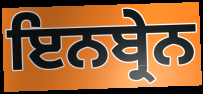
ਇਨਬ੍ਰੇਨ